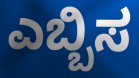
ಎಬ್ಬಿಸ